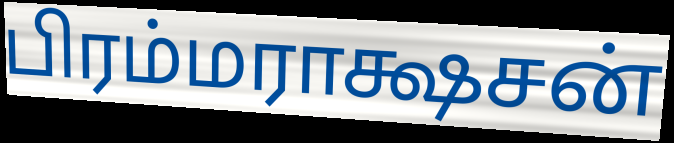
பிரம்மராக்ஷசன்